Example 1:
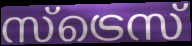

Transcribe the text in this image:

സ്ട്രെസ്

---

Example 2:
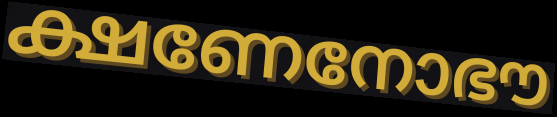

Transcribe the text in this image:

ക്ഷണേനോഭൗ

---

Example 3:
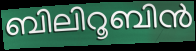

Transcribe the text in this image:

ബിലിറൂബിൻ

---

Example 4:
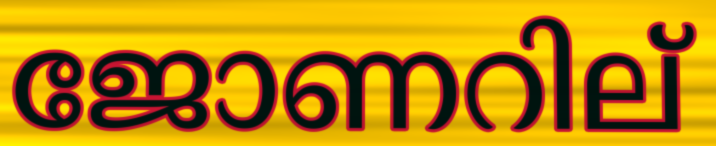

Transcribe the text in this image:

ജോണറില്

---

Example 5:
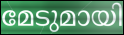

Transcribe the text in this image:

മേടുമായി